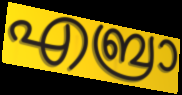
എബ്രാ